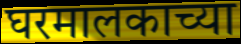
घरमालकाच्या